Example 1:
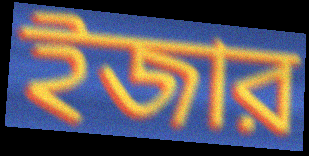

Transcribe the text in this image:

ইজার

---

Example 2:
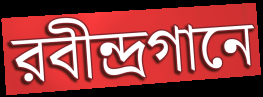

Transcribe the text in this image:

রবীন্দ্রগানে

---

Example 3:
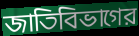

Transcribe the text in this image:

জাতিবিভাগের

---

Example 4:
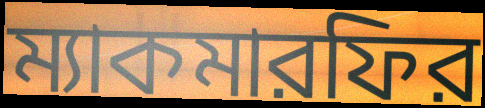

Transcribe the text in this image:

ম্যাকমারফির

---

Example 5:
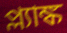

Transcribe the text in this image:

প্ল্যাঙ্ক